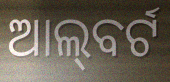
ଆଲ୍‌ବର୍ଟ